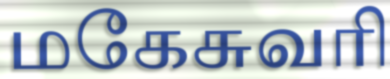
மகேசுவரி